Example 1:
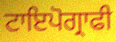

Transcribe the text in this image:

ਟਾਇਪੋਗ੍ਰਾਫੀ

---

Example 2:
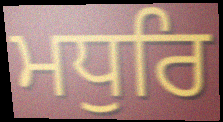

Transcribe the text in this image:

ਮਧੁਰਿ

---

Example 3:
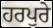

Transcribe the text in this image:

ਹਰਪੁਰੇ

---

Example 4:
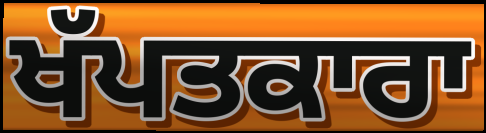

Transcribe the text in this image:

ਖੱਪਤਕਾਰਾ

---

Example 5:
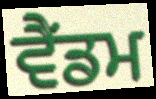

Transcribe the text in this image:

ਵੈਂਡਮ